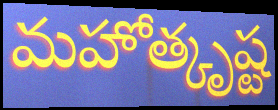
మహోత్కృష్ట